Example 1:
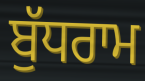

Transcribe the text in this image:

ਬੁੱਧਰਾਮ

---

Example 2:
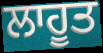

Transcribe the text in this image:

ਲਾਹੂਤ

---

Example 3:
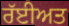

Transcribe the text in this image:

ਰੱਈਅਤ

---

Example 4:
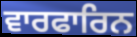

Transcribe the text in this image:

ਵਾਰਫਾਰਿਨ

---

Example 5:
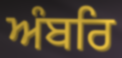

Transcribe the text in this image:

ਅੰਬਰਿ